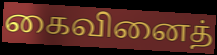
கைவினைத்